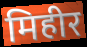
मिहीर